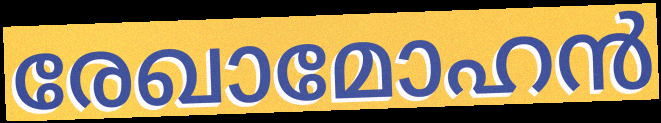
രേഖാമോഹൻ